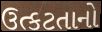
ઉત્કટતાનો